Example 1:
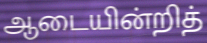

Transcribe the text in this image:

ஆடையின்றித்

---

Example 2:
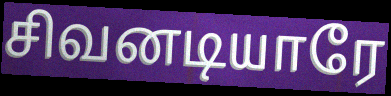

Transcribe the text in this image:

சிவனடியாரே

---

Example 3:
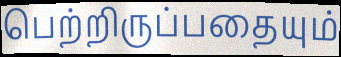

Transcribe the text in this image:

பெற்றிருப்பதையும்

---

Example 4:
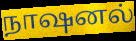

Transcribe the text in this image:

நாஷனல்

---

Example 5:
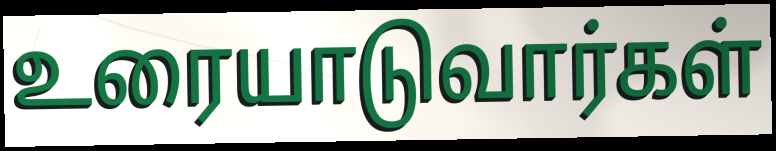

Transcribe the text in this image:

உரையாடுவார்கள்